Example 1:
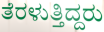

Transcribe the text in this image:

ತೆರಳುತ್ತಿದ್ದರು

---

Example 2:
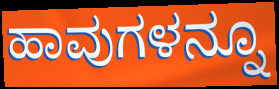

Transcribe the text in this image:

ಹಾವುಗಳನ್ನೂ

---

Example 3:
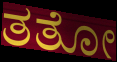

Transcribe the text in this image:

ತತೋ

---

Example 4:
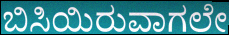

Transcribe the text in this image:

ಬಿಸಿಯಿರುವಾಗಲೇ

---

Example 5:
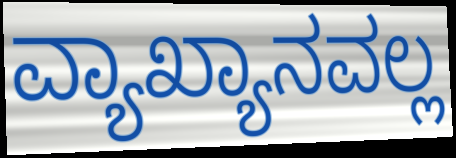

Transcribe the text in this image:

ವ್ಯಾಖ್ಯಾನವಲ್ಲ